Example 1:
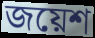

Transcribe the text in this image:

জয়েশ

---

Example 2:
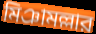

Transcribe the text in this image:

মিঞামল্লার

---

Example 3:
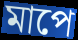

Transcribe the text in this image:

মাপে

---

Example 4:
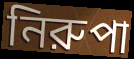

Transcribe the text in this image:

নিরুপা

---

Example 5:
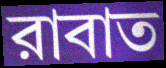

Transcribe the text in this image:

রাবাত